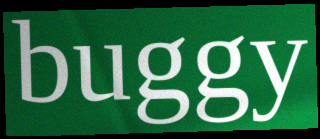
buggy